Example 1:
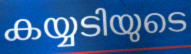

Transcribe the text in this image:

കയ്യടിയുടെ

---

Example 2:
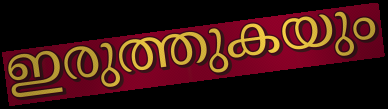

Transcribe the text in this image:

ഇരുത്തുകയും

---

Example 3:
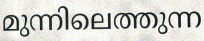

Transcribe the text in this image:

മുന്നിലെത്തുന്ന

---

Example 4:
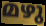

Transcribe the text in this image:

മഴു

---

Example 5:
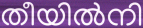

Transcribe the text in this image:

തീയിൽനി